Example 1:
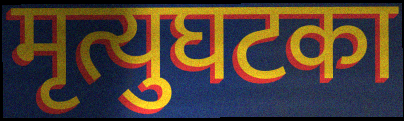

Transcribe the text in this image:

मृत्युघटका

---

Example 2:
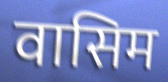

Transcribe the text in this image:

वासिम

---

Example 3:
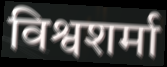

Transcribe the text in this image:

विश्वशर्मा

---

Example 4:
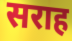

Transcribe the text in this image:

सराह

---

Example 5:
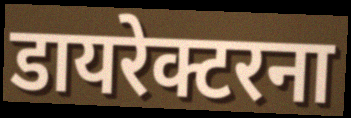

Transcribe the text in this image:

डायरेक्टरना